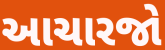
આચારજો